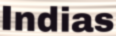
Indias